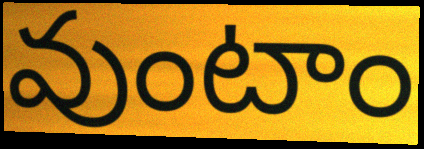
వుంటాం